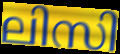
ലിസി